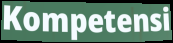
Kompetensi